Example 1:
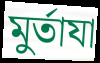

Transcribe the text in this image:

মুর্তাযা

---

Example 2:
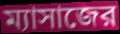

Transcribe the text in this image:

ম্যাসাজের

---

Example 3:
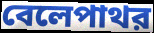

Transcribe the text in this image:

বেলেপাথর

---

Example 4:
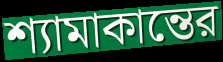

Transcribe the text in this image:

শ্যামাকান্তের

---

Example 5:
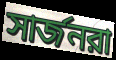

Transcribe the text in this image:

সার্জনরা